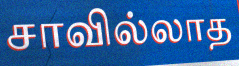
சாவில்லாத